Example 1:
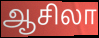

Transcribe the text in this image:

ஆசிலா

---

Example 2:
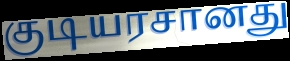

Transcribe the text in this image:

குடியரசானது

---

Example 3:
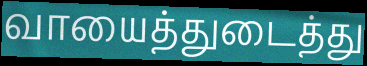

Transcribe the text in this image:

வாயைத்துடைத்து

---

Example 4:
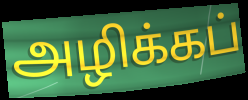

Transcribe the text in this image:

அழிக்கப்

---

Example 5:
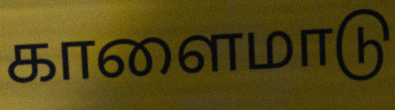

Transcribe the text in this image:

காளைமாடு